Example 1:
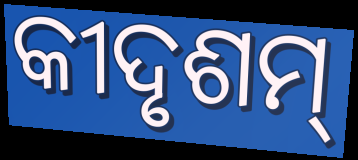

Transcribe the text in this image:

କୀଦୃଶମ୍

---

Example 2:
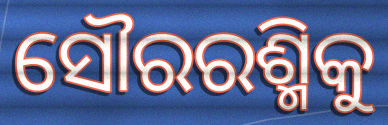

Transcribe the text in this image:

ସୌରରଶ୍ମିକୁ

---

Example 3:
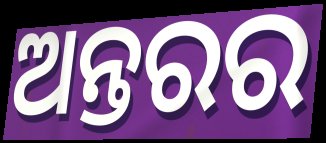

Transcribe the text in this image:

ଅନ୍ତରର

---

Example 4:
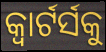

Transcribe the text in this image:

କ୍ୱାର୍ଟର୍ସକୁ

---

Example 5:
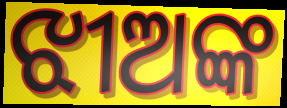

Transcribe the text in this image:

ଝୀଅଙ୍କ